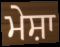
ਮੇਸ਼ਾ